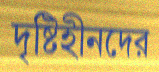
দৃষ্টিহীনদের